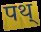
पथ्